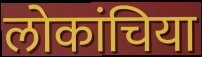
लोकांचिया